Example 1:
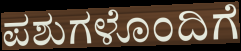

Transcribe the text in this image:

ಪಶುಗಳೊಂದಿಗೆ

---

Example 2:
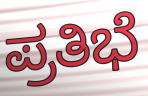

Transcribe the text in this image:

ಪ್ರತಿಭೆ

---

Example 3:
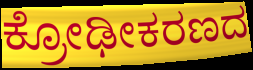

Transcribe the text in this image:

ಕ್ರೋಢೀಕರಣದ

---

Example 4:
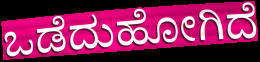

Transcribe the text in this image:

ಒಡೆದುಹೋಗಿದೆ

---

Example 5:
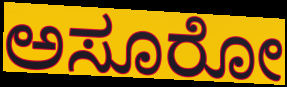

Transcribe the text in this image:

ಅಸೂರೋ